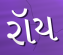
રૉય